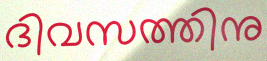
ദിവസത്തിനു